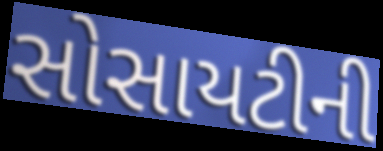
સોસાયટીની